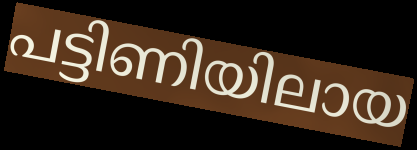
പട്ടിണിയിലായ